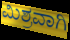
ಮಿಶ್ರವಾಗಿ